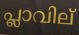
പ്ലാവില്